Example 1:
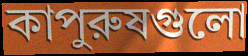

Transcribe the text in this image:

কাপুরুষগুলো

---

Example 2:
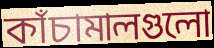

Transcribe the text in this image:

কাঁচামালগুলো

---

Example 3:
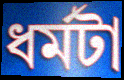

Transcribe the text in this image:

ধর্মটা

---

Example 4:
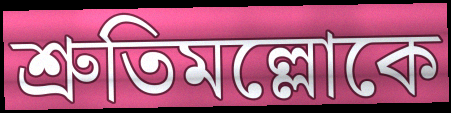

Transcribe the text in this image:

শ্রুতিমল্লোকে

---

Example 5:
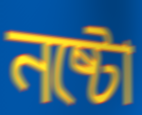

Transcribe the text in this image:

নষ্টো